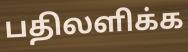
பதிலளிக்க